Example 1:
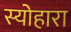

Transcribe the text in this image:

स्योहारा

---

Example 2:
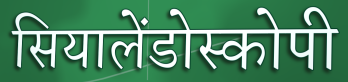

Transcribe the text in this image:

सियालेंडोस्कोपी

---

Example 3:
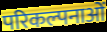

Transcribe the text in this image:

परिकल्पनाओं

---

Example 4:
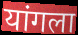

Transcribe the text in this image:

यांगला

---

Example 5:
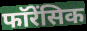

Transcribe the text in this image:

फॉरेंसिक